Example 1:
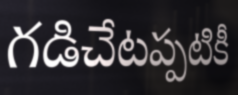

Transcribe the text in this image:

గడిచేటప్పటికీ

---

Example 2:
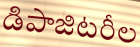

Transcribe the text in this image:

డిపాజిటరీల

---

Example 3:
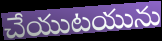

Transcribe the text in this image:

చేయుటయును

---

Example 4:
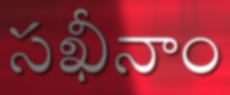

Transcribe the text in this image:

సఖీనాం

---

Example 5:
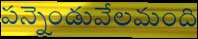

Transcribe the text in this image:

పన్నెండువేలమంది